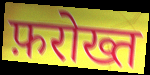
फ़रोख्त